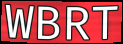
WBRT